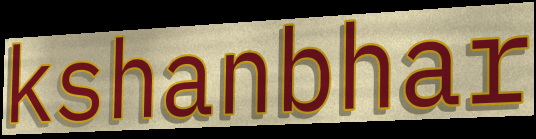
kshanbhar